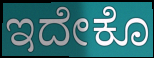
ಇದೇಕೊ